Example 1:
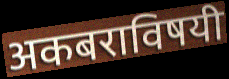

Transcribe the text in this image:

अकबराविषयी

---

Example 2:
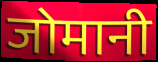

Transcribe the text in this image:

जोमानी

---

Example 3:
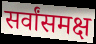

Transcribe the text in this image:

सर्वांसमक्ष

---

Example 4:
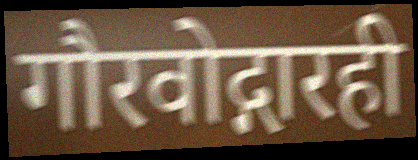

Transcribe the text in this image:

गौरवोद्गारही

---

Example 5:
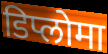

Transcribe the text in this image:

डिप्लोमा